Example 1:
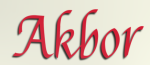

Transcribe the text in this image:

Akbor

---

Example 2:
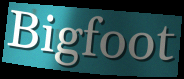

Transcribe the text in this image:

Bigfoot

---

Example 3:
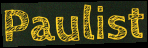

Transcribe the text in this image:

Paulist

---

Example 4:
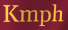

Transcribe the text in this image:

Kmph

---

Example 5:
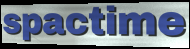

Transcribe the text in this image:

spactime